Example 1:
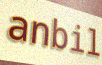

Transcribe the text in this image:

anbil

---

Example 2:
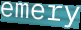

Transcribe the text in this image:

emery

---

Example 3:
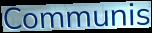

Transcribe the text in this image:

Communis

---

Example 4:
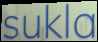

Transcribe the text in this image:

sukla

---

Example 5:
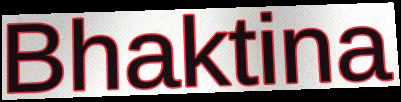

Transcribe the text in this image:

Bhaktina